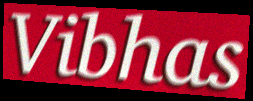
Vibhas